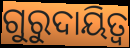
ଗୁରୁଦାୟିତ୍ଵ